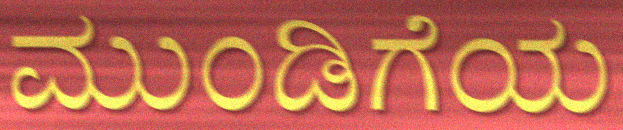
ಮುಂಡಿಗೆಯ